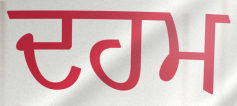
ਦਹਮ